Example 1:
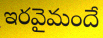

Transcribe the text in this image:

ఇరవైమందే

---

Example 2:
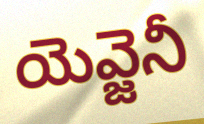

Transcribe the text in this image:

యెవ్జెనీ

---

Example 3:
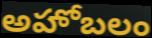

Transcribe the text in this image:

అహోబలం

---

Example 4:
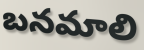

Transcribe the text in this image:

బనమాలి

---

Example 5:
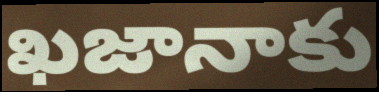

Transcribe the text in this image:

ఖజానాకు